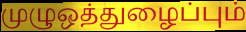
முழுஒத்துழைப்பும்